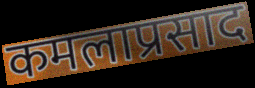
कमलाप्रसाद